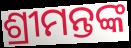
ଶ୍ରୀମନ୍ତଙ୍କ